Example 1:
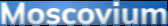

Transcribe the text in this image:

Moscovium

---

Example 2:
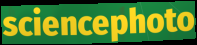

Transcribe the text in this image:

sciencephoto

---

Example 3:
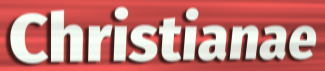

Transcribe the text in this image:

Christianae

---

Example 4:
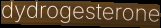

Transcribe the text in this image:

dydrogesterone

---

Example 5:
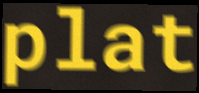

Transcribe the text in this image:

plat